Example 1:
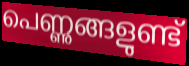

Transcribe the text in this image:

പെണ്ണുങ്ങളുണ്ട്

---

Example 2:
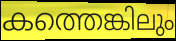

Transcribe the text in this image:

കത്തെങ്കിലും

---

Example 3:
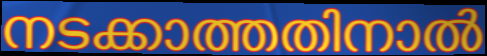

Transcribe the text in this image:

നടക്കാത്തതിനാൽ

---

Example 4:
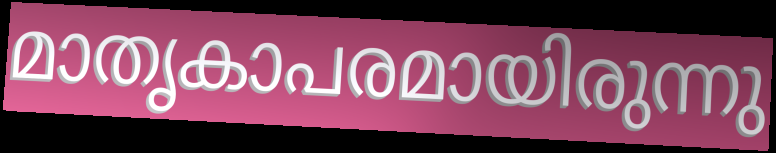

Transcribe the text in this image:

മാതൃകാപരമായിരുന്നു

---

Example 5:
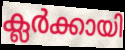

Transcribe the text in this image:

ക്ലർക്കായി